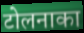
टोलनाका